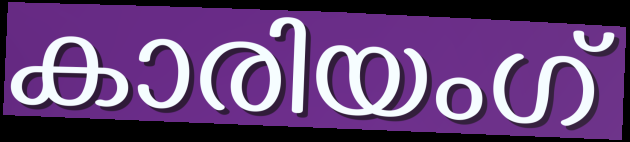
കാരിയംഗ്